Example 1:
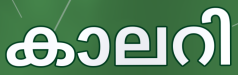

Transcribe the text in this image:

കാലറി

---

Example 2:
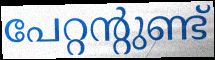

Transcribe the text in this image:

പേറ്റന്റുണ്ട്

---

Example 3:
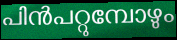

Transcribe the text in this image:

പിൻപറ്റുമ്പോഴും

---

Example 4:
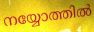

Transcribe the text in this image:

നയ്യോത്തിൽ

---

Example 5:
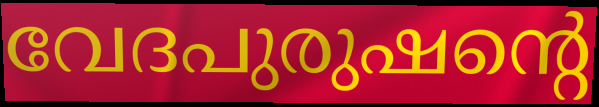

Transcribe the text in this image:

വേദപുരുഷന്റെ